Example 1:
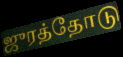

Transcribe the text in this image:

ஜுரத்தோடு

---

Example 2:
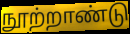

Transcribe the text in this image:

நூற்றாண்டு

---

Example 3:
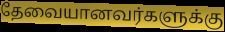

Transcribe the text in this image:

தேவையானவர்களுக்கு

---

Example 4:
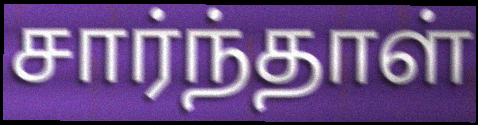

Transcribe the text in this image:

சார்ந்தாள்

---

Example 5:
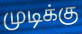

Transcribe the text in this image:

முடிக்கு